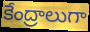
కేంద్రాలుగా